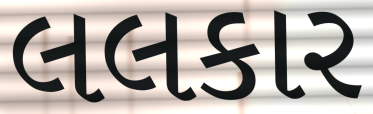
લલકાર